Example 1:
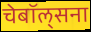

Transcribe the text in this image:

चेबॉल्सना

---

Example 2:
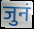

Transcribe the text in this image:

जुनं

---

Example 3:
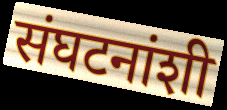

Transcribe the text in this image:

संघटनांशी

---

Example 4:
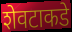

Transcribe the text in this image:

शेवटाकडे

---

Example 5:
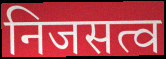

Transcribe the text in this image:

निजसत्व